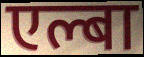
एल्बा